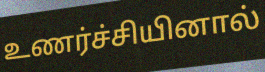
உணர்ச்சியினால்